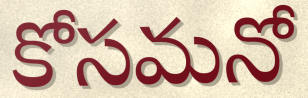
కోసమనో